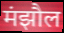
मंझौल